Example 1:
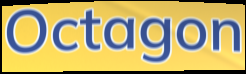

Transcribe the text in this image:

Octagon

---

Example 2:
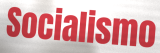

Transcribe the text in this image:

Socialismo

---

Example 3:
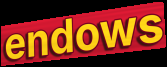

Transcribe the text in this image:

endows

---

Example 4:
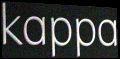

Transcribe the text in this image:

kappa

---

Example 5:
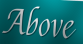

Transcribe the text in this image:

Above